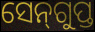
ସେନ୍‌ଗୁପ୍ତ